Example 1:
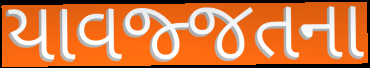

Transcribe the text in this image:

યાવજ્જતના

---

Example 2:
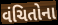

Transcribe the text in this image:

વંચિતોના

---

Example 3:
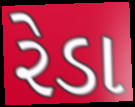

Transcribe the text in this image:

રેડા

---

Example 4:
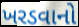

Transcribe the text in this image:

ખરડવાનો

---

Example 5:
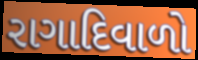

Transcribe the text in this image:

રાગાદિવાળો